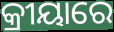
କ୍ରୀୟାରେ